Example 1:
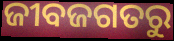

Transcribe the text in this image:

ଜୀବଜଗତରୁ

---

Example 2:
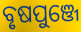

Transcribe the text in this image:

ବୃଷପୁଞ୍ଜେ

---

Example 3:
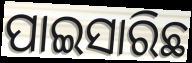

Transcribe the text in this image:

ପାଇସାରିଛ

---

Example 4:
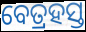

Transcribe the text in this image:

ବେତ୍ରହସ୍ତ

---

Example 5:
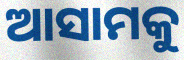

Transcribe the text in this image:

ଆସାମକୁ